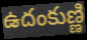
ఉదంకుణ్ణి